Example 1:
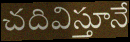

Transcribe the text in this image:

చదివిస్తూనే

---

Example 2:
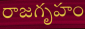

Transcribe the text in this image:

రాజగృహం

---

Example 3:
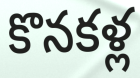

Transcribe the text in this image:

కొనకళ్ల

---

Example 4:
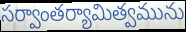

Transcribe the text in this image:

సర్వాంతర్యామిత్వమును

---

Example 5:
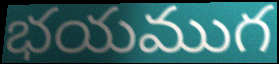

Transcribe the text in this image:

భయముగ